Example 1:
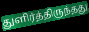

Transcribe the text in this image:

துளிர்த்திருந்தது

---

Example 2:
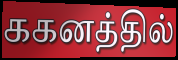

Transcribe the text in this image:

ககனத்தில்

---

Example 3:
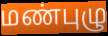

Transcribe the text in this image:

மண்புழு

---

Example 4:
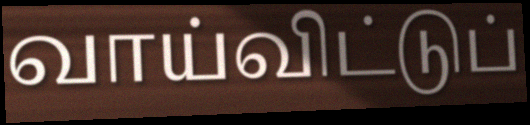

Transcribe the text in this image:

வாய்விட்டுப்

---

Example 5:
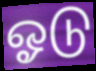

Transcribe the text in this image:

ஓடு